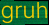
gruh